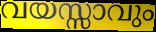
വയസ്സാവും